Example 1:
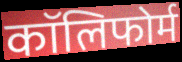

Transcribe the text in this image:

कॉलिफोर्म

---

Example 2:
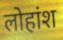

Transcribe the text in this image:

लोहांश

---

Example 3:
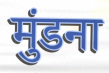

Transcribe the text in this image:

मुंडना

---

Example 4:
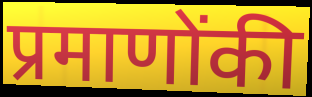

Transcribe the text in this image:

प्रमाणोंकी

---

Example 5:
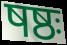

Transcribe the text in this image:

षष्ठः